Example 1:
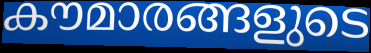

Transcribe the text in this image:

കൗമാരങ്ങളുടെ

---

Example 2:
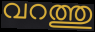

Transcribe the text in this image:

വറത്തു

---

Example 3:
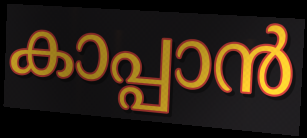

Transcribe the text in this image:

കാപ്പാൻ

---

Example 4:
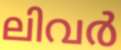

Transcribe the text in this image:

ലിവർ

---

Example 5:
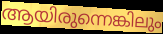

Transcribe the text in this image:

ആയിരുന്നെങ്കിലും